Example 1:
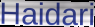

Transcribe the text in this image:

Haidari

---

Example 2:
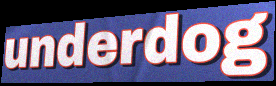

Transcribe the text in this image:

underdog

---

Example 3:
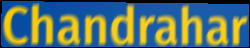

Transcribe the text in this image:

Chandrahar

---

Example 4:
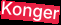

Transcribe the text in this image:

Konger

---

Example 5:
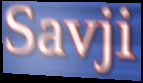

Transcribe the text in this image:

Savji